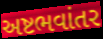
અષ્ટભવાંતર